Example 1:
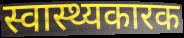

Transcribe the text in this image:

स्वास्थ्यकारक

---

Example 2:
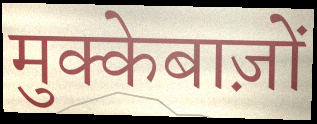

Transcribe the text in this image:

मुक्केबाज़ों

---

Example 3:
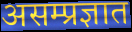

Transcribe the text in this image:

असम्प्रज्ञात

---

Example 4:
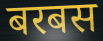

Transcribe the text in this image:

बरबस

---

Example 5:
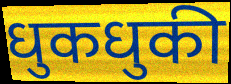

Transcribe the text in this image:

धुकधुकी